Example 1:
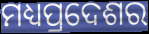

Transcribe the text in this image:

ମଧ୍ଯପ୍ରଦେଶର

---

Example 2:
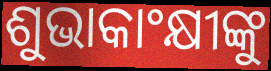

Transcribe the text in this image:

ଶୁଭାକାଂକ୍ଷୀଙ୍କୁ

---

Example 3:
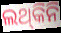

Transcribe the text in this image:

ଲଥ୍‍କିନି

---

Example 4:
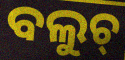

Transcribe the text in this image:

ବଲୁଚ୍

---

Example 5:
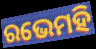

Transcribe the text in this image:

ରଭେମହି